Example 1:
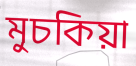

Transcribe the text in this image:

মুচকিয়া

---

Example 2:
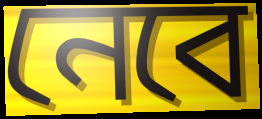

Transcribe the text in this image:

নেবে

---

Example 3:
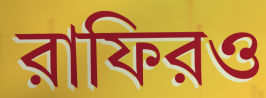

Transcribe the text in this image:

রাফিরও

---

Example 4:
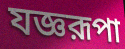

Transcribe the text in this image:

যজ্ঞরূপা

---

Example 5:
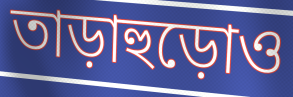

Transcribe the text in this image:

তাড়াহুড়োও